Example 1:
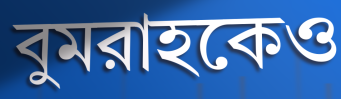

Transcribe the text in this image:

বুমরাহকেও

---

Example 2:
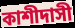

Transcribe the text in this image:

কাশীদাসী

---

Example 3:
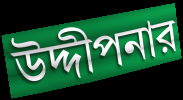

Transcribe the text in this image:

উদ্দীপনার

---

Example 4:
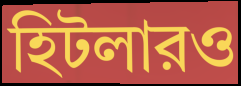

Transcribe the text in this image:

হিটলারও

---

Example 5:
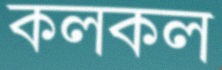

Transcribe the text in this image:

কলকল